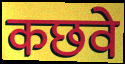
कछवे